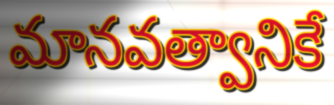
మానవత్వానికే